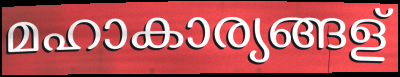
മഹാകാര്യങ്ങള്